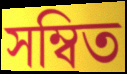
সম্বিত